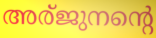
അര്ജുനന്റെ